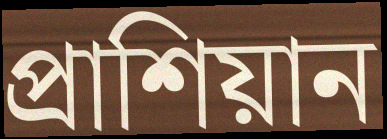
প্রাশিয়ান